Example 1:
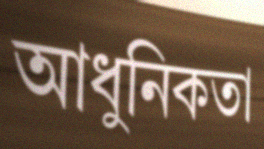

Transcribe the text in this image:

আধুনিকতা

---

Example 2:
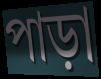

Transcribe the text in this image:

পাড়া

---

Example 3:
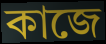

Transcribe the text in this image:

কাজে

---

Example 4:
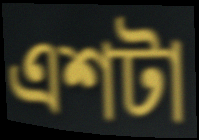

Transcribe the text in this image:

এশটা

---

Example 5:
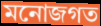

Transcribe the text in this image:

মনোজগত